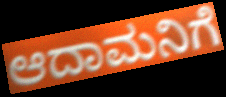
ಆದಾಮನಿಗೆ